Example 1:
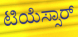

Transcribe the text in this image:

ಟಿಯೆಸ್ಸಾರ್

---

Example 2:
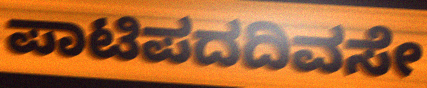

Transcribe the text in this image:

ಪಾಟಿಪದದಿವಸೇ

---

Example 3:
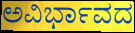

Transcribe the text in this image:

ಅವಿರ್ಭಾವದ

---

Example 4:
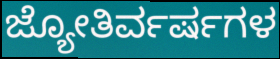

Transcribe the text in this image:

ಜ್ಯೋತಿರ್ವರ್ಷಗಳ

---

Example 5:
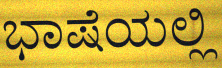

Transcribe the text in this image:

ಭಾಷೆಯಲ್ಲಿ